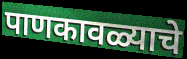
पाणकावळ्याचे